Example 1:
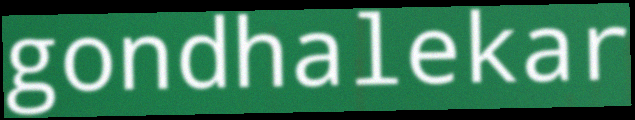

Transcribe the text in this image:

gondhalekar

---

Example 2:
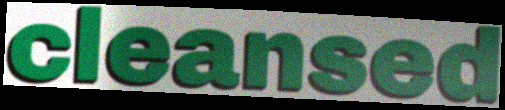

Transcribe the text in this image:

cleansed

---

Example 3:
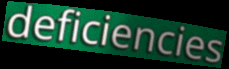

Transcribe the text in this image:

deficiencies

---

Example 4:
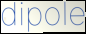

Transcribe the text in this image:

dipole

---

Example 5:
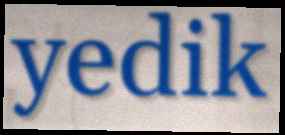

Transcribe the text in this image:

yedik